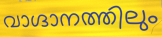
വാഗ്ദാനത്തിലും